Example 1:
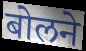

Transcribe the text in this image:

बोलने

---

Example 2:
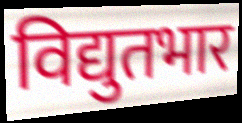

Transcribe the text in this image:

विद्युतभार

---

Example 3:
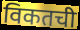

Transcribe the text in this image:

विकतची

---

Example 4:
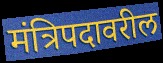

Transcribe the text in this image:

मंत्रिपदावरील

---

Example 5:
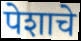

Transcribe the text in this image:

पेशाचे